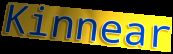
Kinnear